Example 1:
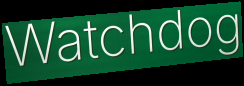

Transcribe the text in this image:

Watchdog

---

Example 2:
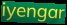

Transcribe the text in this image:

iyengar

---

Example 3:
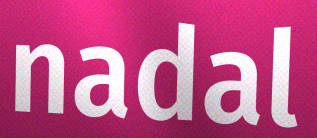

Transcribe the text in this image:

nadal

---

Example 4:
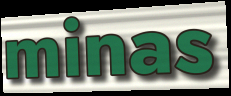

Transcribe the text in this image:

minas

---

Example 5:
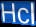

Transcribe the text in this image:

Hcl